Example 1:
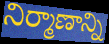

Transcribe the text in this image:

నిర్మాణాన్ని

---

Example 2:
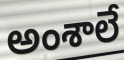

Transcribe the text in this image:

అంశాలే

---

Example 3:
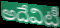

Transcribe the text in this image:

అదేవిటీ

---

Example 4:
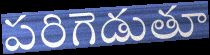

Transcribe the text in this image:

పరిగెడుతూ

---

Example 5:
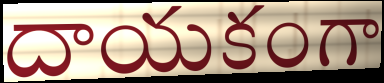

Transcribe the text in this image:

దాయకంగా